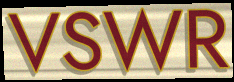
VSWR